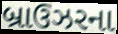
બ્રાઉઝરના